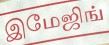
இமேஜிங்